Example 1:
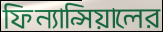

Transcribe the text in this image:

ফিন্যান্সিয়ালের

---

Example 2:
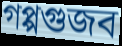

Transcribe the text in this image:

গপ্পগুজব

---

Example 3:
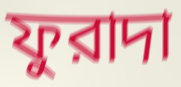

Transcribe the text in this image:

ফুরাদা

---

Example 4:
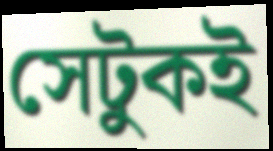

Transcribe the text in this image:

সেটুকই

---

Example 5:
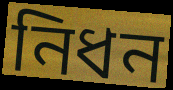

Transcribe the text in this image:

নিধন